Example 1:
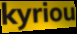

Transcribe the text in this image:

kyriou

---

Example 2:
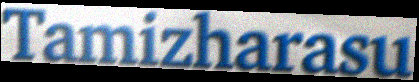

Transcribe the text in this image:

Tamizharasu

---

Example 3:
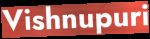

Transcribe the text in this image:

Vishnupuri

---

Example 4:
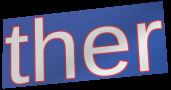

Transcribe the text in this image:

ther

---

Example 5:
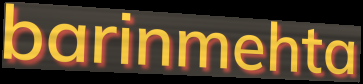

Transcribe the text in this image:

barinmehta